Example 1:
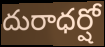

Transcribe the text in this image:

దురాధర్షో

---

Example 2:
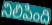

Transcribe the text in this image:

నిలిపింది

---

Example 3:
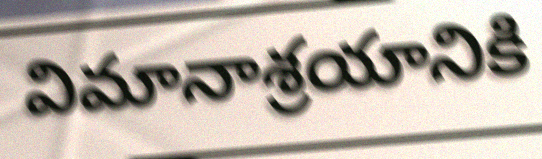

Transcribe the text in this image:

విమానాశ్రయానికి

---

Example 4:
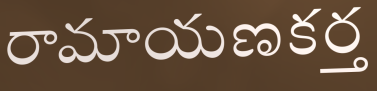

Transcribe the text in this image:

రామాయణకర్త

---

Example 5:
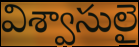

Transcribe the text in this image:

విశ్వాసులై